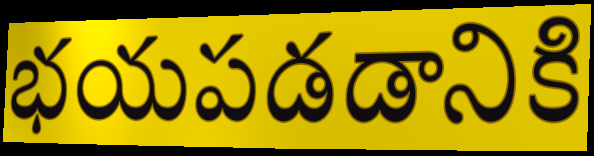
భయపడడానికి